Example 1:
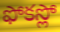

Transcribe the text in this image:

ఫోకస్లో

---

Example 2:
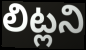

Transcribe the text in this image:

లిట్లని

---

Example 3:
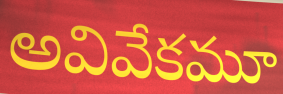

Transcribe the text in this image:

అవివేకమూ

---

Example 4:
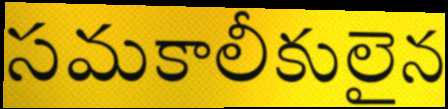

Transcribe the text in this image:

సమకాలీకులైన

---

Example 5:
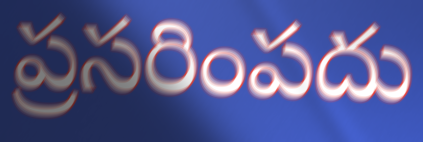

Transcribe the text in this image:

ప్రసరింపదు